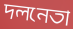
দলনেতা